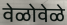
वेळोवेळे